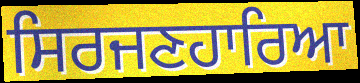
ਸਿਰਜਣਹਾਰਿਆ